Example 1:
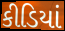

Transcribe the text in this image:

કીડિયાં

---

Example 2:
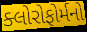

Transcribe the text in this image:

ક્લોરોફોર્મનો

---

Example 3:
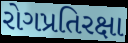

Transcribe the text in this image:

રોગપ્રતિરક્ષા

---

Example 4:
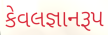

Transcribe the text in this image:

કેવલજ્ઞાનરૂપ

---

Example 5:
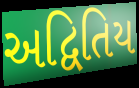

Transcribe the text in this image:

અદ્વિતિય